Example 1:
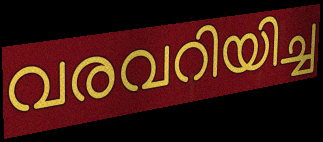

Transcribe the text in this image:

വരവറിയിച്ച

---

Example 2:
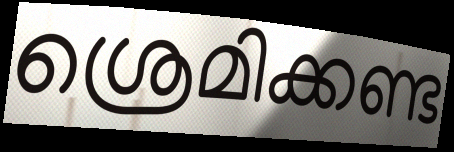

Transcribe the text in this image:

ശ്രെമിക്കണ്ട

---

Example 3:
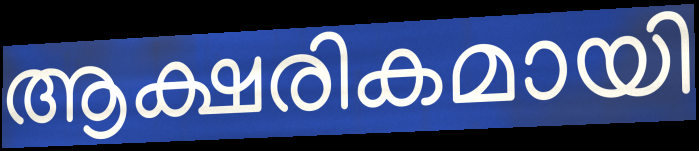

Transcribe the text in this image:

ആക്ഷരികമായി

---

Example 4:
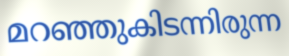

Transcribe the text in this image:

മറഞ്ഞുകിടന്നിരുന്ന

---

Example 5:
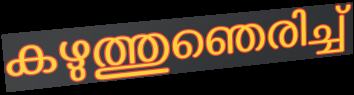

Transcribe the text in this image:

കഴുത്തുഞെരിച്ച്